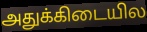
அதுக்கிடையில